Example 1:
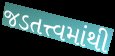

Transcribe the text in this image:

જડતત્ત્વમાંથી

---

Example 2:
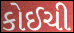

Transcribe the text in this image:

કોઈચી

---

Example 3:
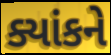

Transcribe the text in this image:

ક્યાંકને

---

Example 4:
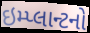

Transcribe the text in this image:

ઇમ્પ્લાન્ટનો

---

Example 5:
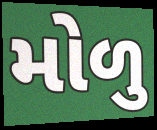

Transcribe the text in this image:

મોળુ